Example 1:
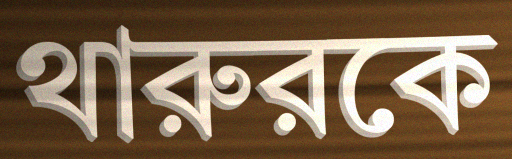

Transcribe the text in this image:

থারুরকে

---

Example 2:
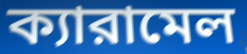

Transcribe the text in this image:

ক্যারামেল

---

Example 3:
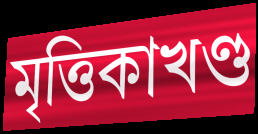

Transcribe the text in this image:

মৃত্তিকাখণ্ড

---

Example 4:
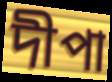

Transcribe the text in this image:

দীপা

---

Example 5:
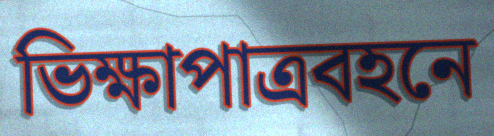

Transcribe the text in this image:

ভিক্ষাপাত্রবহনে